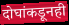
दोघांकडूनही